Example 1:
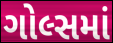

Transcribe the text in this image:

ગોલ્સમાં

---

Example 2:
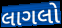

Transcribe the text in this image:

લાગલો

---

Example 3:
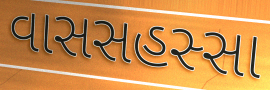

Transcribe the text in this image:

વાસસહસ્સા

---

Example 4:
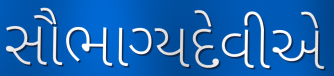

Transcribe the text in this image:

સૌભાગ્યદેવીએ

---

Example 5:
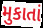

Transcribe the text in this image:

મુકાતાં